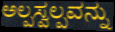
ಅಲ್ಪಸ್ವಲ್ಪವನ್ನು